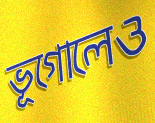
ভূগোলেও